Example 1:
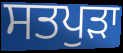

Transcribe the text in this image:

ਸਤਪੁੜਾ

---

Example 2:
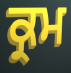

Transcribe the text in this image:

ਕ੍ਰਮ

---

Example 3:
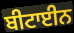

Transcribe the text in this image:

ਬੀਟਾਈਨ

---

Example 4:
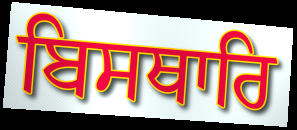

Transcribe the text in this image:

ਬਿਸਥਾਰਿ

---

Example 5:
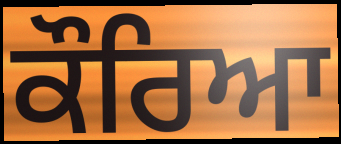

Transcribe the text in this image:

ਕੌਰਿਆ